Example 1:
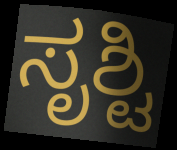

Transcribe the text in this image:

ಸೃಶ್ಟಿ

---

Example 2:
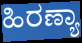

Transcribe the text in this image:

ಹಿರಣ್ಯಾ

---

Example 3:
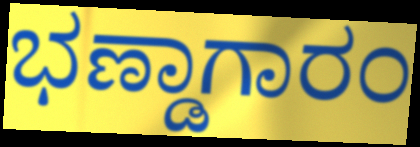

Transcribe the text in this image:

ಭಣ್ಡಾಗಾರಂ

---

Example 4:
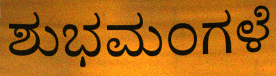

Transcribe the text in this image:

ಶುಭಮಂಗಳೆ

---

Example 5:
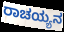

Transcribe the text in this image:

ರಾಚಯ್ಯನ